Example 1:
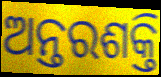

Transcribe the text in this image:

ଅନ୍ତରଶକ୍ତି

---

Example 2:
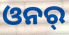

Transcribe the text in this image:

ଓନର୍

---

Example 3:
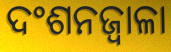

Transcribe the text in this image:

ଦଂଶନଜ୍ୱାଳା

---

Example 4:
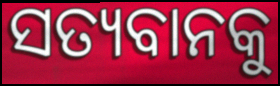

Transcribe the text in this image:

ସତ୍ୟବାନକୁ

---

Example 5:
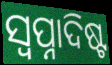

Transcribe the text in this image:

ସ୍ୱପ୍ନାଦିଷ୍ଟ